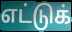
எட்டுக்